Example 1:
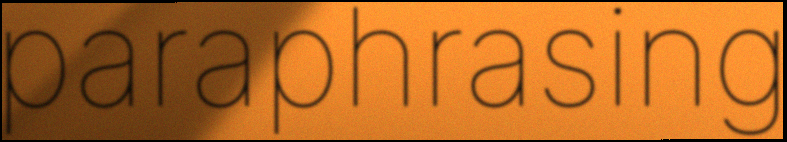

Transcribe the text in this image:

paraphrasing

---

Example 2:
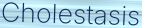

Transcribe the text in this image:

Cholestasis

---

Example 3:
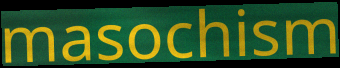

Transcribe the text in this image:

masochism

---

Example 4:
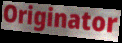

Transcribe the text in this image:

Originator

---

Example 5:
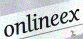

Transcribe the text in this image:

onlineex